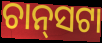
ଚାନ୍‌ସଟା